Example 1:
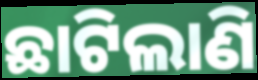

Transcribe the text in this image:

ଛାଟିଲାଣି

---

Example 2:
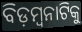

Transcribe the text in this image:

ବିଡ଼ମ୍ବନାଟିକୁ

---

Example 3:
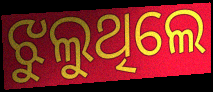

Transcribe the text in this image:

ଝୁଲୁଥିଲେ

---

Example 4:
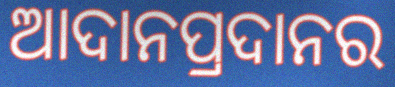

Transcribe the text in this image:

ଆଦାନପ୍ରଦାନର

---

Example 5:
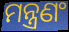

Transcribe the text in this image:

ମନ୍ତ୍ରଣଂ